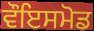
ਵੌਇਸਮੋਡ